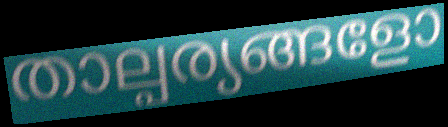
താല്പര്യങ്ങളോ